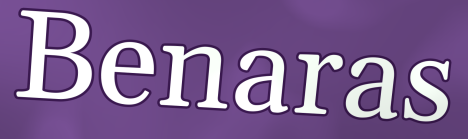
Benaras